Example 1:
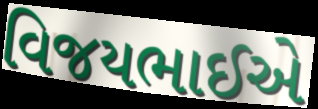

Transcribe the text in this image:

વિજયભાઈએ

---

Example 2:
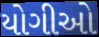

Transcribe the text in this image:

યોગીઓ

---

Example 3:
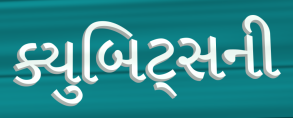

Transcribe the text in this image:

ક્યુબિટ્સની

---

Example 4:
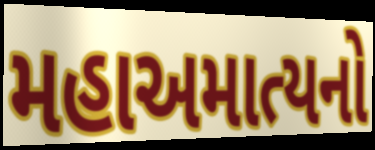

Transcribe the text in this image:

મહાઅમાત્યનો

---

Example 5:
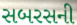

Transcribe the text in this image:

સબરસની